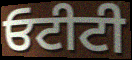
ਓਟੀਟੀ